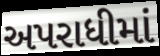
અપરાધીમાં